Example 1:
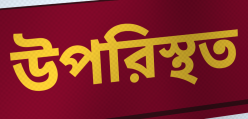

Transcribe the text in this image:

উপরিস্থত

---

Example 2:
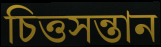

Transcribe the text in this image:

চিত্তসন্তান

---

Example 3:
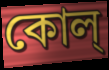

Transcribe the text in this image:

কোল্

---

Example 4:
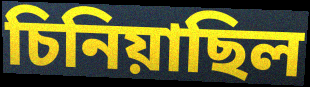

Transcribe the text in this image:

চিনিয়াছিল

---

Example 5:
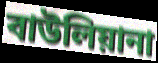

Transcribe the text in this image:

বাউলিয়ানা